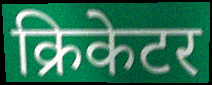
क्रिकेटर